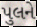
પુલને